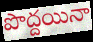
పొద్దయినా